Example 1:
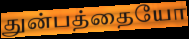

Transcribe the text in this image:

துன்பத்தையோ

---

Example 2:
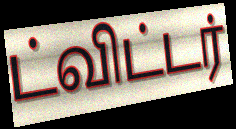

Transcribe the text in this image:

ட்விட்டர்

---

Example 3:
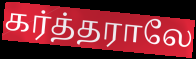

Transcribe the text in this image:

கர்த்தராலே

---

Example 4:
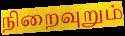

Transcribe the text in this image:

நிறைவுறும்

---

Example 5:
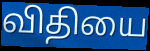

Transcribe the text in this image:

விதியை